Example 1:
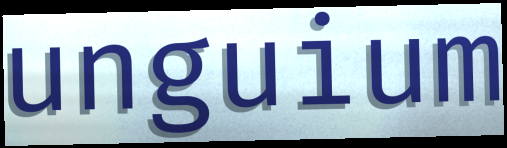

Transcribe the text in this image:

unguium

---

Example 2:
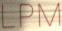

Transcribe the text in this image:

LPM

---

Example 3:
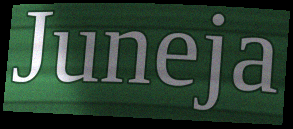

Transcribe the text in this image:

Juneja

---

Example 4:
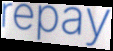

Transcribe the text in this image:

repay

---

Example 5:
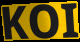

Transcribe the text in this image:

KOI